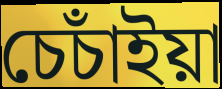
চেচাঁইয়া